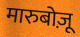
मारुबोज़ू